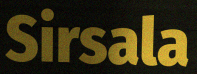
Sirsala